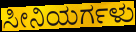
ಸೀನಿಯರ್ಗಳು